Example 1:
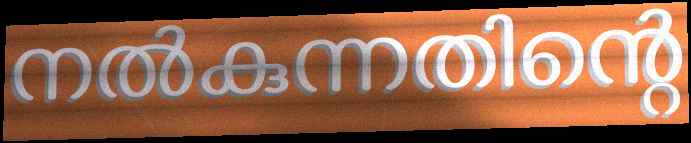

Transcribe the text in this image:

നൽകുന്നതിന്റെ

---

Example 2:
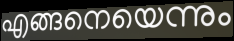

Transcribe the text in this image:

എങ്ങനെയെന്നും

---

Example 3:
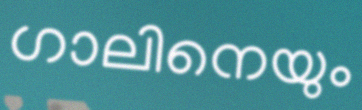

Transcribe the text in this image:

ഗാലിനെയും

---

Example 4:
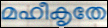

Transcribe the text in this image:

മഹീകൃതേ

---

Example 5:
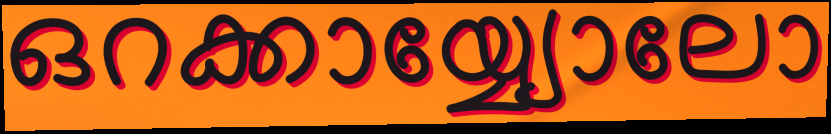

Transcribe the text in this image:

ഒറക്കായ്യ്യോലോ